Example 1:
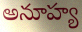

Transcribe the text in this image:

అనూహ్య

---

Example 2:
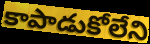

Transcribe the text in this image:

కాపాడుకోలేని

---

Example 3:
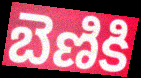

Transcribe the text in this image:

బెణికి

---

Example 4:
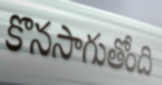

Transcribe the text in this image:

కొనసాగుతోంది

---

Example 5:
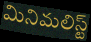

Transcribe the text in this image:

మినిమలిస్ట్